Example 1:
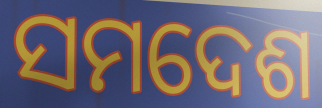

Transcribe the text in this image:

ସମଦେଶ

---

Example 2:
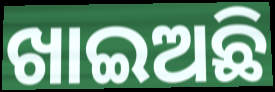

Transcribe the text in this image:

ଖାଇଅଛି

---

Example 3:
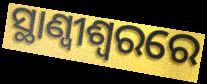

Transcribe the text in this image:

ସ୍ଥାଣ୍ୱୀଶ୍ୱରରେ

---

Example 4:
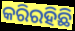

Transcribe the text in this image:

କରିରହିଛି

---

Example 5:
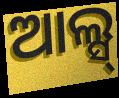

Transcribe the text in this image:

ଆଲ୍ସ୍